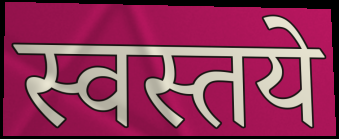
स्वस्तये